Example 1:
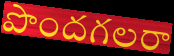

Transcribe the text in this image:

పొందగలరా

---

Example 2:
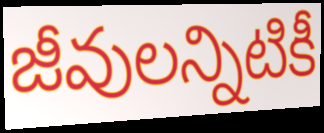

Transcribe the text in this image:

జీవులన్నిటికీ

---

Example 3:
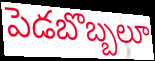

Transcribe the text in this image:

పెడబొబ్బలూ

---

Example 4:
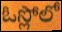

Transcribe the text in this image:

ఓస్లోలో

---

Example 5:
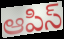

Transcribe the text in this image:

ఆపిస్